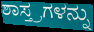
ಶಾಸ್ತ್ರಗಳನ್ನು